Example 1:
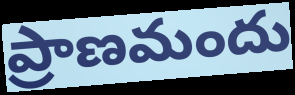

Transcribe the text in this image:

ప్రాణమందు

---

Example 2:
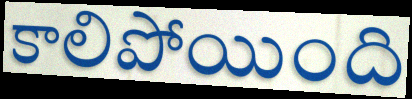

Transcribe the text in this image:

కాలిపోయింది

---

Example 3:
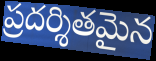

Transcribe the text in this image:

ప్రదర్శితమైన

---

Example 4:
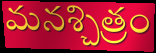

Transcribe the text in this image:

మనశ్చిత్రం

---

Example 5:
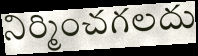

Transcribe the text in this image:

నిర్మించగలదు